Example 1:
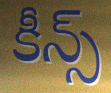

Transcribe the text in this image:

కీన్స్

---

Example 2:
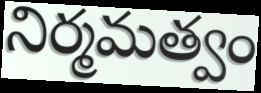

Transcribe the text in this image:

నిర్మమత్వం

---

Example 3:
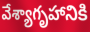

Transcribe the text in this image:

వేశ్యాగృహానికి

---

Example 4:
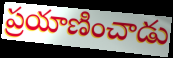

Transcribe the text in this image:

ప్రయాణించాడు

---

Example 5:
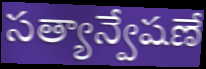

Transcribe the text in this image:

సత్యాన్వేషణే